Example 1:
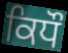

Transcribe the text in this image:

ਕਿਧੌ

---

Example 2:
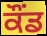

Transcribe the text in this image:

ਕੌਂਡ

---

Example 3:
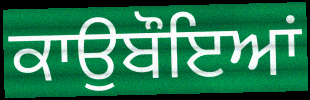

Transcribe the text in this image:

ਕਾਉਬੌਇਆਂ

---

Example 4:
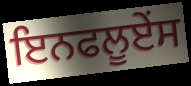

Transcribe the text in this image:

ਇਨਫਲੂਏਂਸ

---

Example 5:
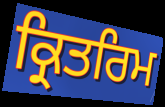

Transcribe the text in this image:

ਕ੍ਰਿਤਰਿਮ